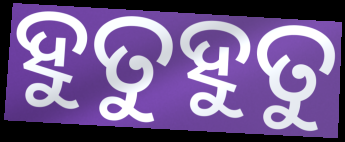
ହୁତୁହୁତୁ